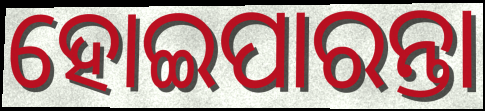
ହୋଇପାରନ୍ତା